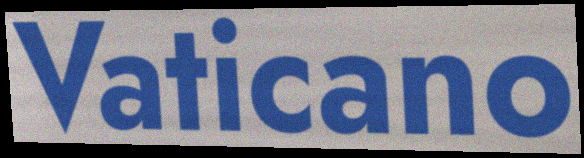
Vaticano